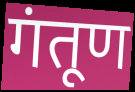
गंतूण